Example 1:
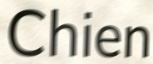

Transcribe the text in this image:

Chien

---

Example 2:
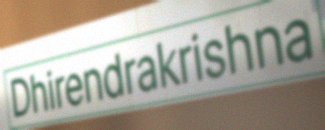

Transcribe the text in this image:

Dhirendrakrishna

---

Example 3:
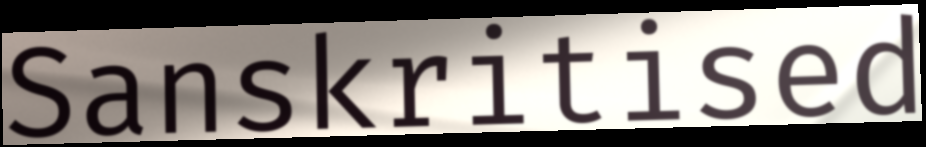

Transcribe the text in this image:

Sanskritised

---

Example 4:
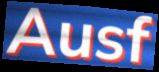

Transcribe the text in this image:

Ausf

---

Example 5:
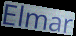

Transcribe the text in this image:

Elmar